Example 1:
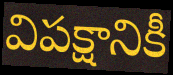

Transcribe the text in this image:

విపక్షానికీ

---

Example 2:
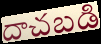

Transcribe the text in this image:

దాచబడి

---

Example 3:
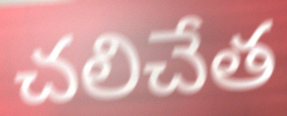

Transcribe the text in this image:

చలిచేత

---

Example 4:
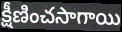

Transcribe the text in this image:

క్షీణించసాగాయి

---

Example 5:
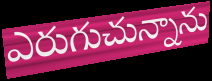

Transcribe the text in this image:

ఎరుగుచున్నాను